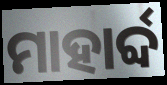
ମାହାର୍ବ୍ଦ